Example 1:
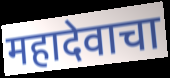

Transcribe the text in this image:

महादेवाचा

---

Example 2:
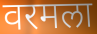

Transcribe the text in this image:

वरमला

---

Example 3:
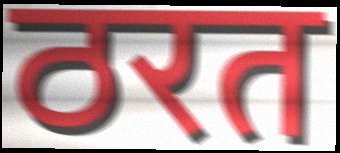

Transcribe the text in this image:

ठरत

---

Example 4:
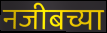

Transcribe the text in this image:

नजीबच्या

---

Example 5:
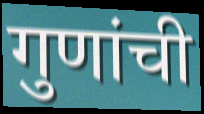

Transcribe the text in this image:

गुणांची